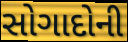
સોગાદોની